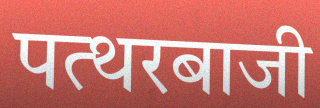
पत्‍थरबाजी